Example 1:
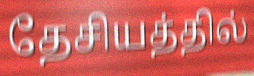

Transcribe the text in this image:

தேசியத்தில்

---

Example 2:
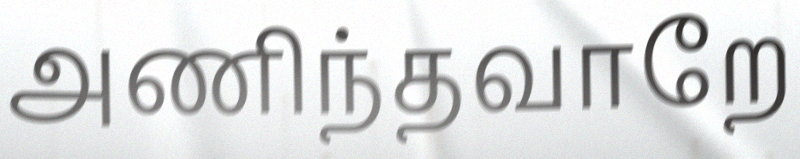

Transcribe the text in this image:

அணிந்தவாறே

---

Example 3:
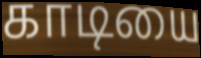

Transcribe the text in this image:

காடியை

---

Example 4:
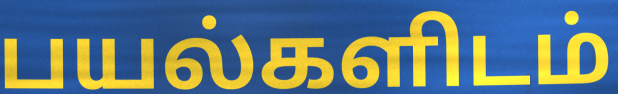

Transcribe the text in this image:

பயல்களிடம்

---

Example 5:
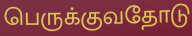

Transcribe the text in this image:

பெருக்குவதோடு